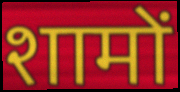
शामों